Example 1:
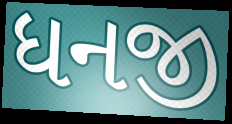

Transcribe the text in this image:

ધનજી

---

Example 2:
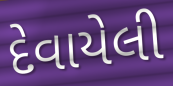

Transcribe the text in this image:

દેવાયેલી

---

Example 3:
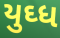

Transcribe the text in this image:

યુઘ્ધ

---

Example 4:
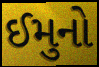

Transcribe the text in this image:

ઈમુનો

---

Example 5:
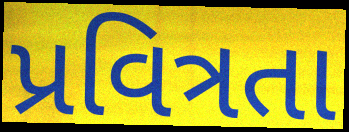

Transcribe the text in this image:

પ્રવિત્રતા